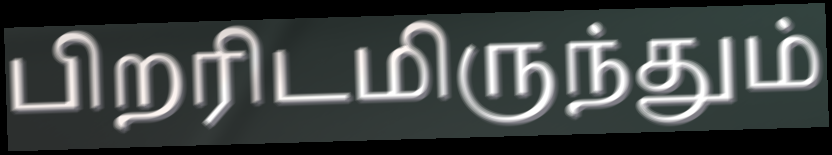
பிறரிடமிருந்தும்